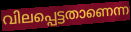
വിലപ്പെട്ടതാണെന്ന